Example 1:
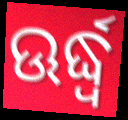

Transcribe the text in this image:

ଊର୍ଦ୍ଧ୍ୱ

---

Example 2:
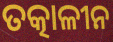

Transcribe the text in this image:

ତତ୍କାଳୀନ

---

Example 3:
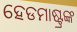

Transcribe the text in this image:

ହେଡମାଷ୍ଟ୍ରଙ୍କ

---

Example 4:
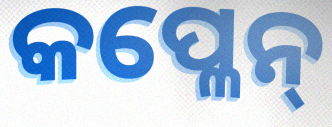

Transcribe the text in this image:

କପ୍ଳେନ୍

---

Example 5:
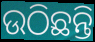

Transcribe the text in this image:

ଉଠିଛନ୍ତି